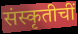
संस्कृतीचीं